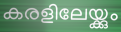
കരളിലേയ്ക്കും